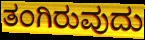
ತಂಗಿರುವುದು